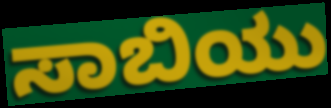
ಸಾಬಿಯು